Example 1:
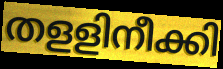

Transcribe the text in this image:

തളളിനീക്കി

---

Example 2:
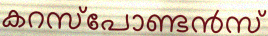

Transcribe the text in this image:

കറസ്പോണ്ടൻസ്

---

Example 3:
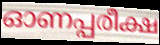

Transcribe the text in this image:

ഓണപ്പരീക്ഷ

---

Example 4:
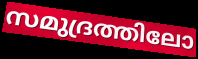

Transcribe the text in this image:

സമുദ്രത്തിലോ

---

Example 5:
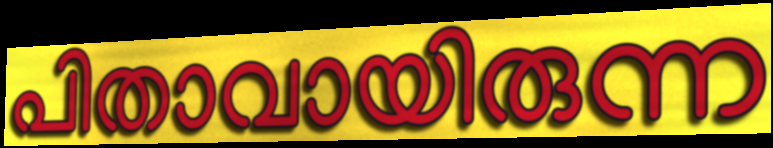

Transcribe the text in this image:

പിതാവായിരുന്ന